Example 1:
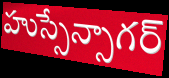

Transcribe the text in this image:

హుస్సేన్సాగర్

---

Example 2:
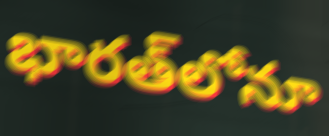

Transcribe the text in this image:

భారత్‌లోనూ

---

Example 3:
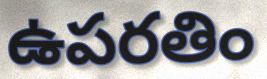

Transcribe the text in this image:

ఉపరతిం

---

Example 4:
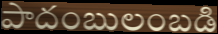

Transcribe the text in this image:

పాదంబులంబడి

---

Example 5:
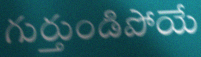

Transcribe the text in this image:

గుర్తుండిపోయే